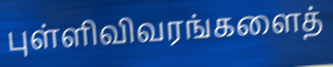
புள்ளிவிவரங்களைத்